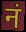
नं